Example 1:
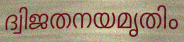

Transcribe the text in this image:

ദ്വിജതനയമൃതിം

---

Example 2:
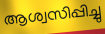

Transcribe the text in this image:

ആശ്വസിപ്പിച്ചു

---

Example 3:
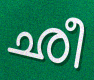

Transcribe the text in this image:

ഛീ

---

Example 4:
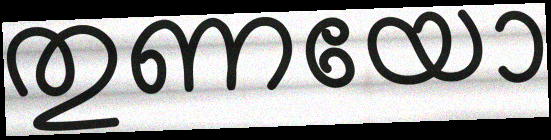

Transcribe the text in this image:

തുണയോ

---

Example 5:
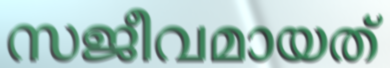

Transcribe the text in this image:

സജീവമായത്